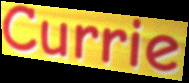
Currie